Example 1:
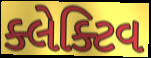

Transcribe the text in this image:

ક્લેક્ટિવ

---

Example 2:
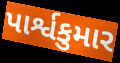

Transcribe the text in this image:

પાર્શ્વકુમાર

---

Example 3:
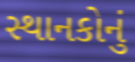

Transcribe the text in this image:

સ્થાનકોનું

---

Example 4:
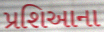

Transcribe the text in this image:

પ્રશિઆના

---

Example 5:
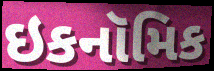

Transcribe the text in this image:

ઇકનૉમિક